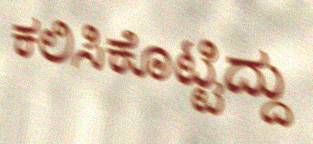
ಕಲಿಸಿಕೊಟ್ಟಿದ್ದು